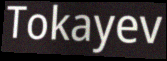
Tokayev